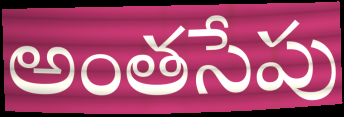
అంతసేపు